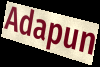
Adapun